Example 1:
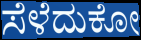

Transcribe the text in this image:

ಸೆಳೆದುಕೋ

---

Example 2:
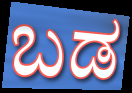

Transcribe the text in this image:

ಬಡ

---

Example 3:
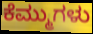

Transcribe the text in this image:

ಕೆಮ್ಮುಗಳು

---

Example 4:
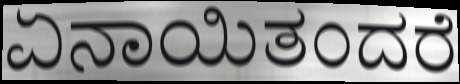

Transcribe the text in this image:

ಏನಾಯಿತಂದರೆ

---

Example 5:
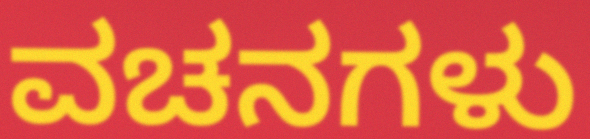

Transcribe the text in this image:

ವಚನಗಳು